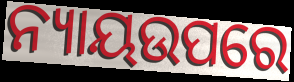
ନ୍ୟାୟଉପରେ